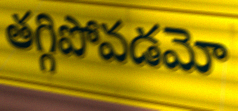
తగ్గిపోవడమో